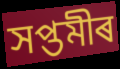
সপ্তমীৰ